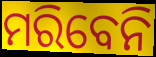
ମରିବେନି